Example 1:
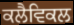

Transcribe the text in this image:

ਕਲੈਵਿਕਲ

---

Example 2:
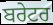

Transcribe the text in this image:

ਬਰੇਟਰ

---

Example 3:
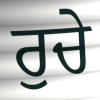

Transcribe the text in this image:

ਰੁਚੇ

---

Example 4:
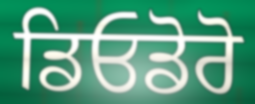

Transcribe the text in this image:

ਡਿਓਡੋਰੋ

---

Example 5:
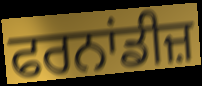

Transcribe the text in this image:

ਫਰਨਾਂਡੀਜ਼